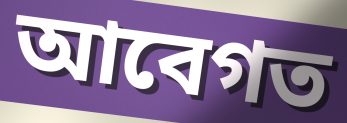
আবেগত